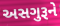
અસગુરૂને